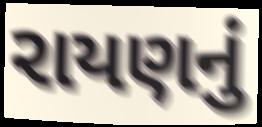
રાયણનું